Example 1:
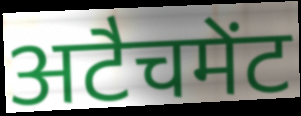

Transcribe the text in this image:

अटैचमेंट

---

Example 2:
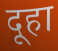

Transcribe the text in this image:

दूहा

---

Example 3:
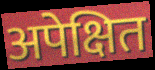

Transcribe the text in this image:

अपेक्षित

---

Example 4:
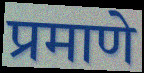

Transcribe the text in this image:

प्रमाणे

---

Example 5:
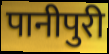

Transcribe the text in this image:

पानीपुरी